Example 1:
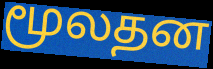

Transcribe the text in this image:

மூலதன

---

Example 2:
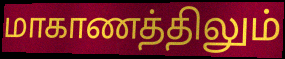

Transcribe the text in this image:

மாகாணத்திலும்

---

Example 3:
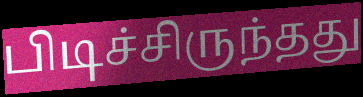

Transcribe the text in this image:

பிடிச்சிருந்தது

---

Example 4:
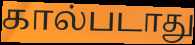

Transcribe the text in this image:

கால்படாது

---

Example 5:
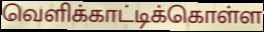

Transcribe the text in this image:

வெளிக்காட்டிக்கொள்ள